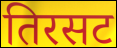
तिरसट